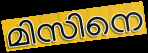
മിസിനെ